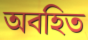
অবহিত